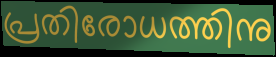
പ്രതിരോധത്തിനു